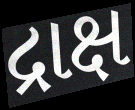
દ્રાક્ષ